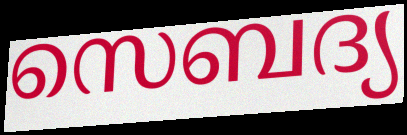
സെബദ്യ